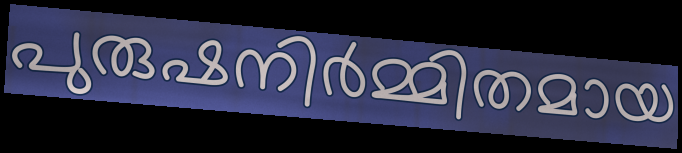
പുരുഷനിർമ്മിതമായ